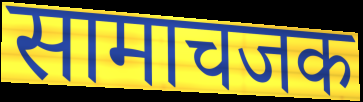
सामाचजक